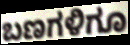
ಬಣಗಳಿಗೂ